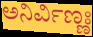
ಅನಿರ್ವಿಣ್ಣಃ